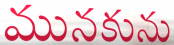
మునకును